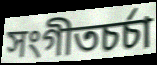
সংগীতচর্চা